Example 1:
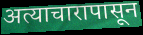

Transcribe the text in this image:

अत्याचारापासून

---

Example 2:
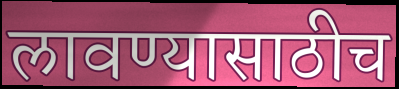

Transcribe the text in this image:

लावण्यासाठीच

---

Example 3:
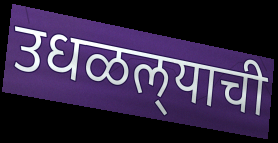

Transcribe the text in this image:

उधळल्याची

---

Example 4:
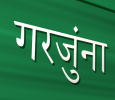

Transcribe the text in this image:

गरजुंना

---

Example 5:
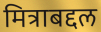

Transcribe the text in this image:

मित्राबद्दल